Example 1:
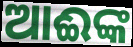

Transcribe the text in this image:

ଆଈଙ୍କ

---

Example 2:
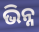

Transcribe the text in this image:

ଭିନ୍ନ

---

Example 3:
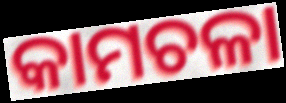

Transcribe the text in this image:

କାମଚଳା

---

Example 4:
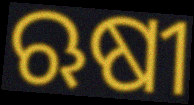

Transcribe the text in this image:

ଋଷୀ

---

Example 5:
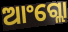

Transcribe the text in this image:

ଆଂଗ୍ଲୋ